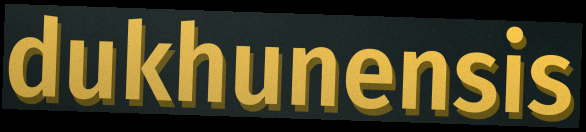
dukhunensis